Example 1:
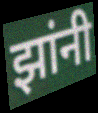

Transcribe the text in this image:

झांनी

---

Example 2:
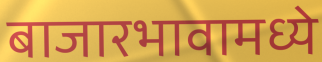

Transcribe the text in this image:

बाजारभावामध्ये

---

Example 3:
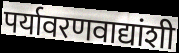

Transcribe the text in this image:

पर्यावरणवाद्यांशी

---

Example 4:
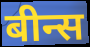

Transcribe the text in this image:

बीन्स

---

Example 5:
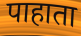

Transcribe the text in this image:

पाहाता